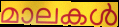
മാലകൾ